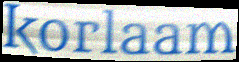
korlaam